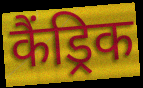
कैंड्रिक